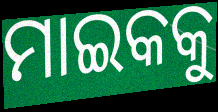
ମାଇକକୁ